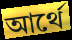
আর্থে